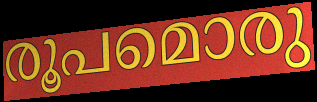
രൂപമൊരു